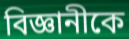
বিজ্ঞানীকে